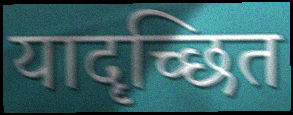
यादृच्छित